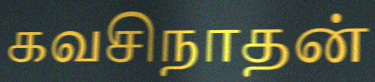
கவசிநாதன்